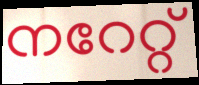
നറേറ്റ്